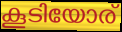
കൂടിയോര്